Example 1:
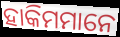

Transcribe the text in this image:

ହାକିମମାନେ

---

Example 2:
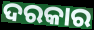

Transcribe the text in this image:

ଦରକାର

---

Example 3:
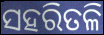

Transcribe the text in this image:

ସହରିତଳି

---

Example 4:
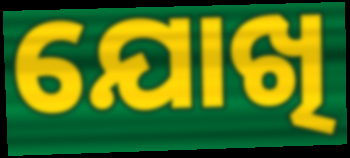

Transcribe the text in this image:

ଯୋଖି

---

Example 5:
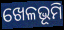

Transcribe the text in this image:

ଖେଳଭୂମି